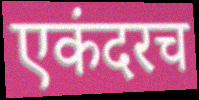
एकंदरच